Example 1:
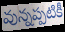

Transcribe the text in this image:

వున్నప్పటికీ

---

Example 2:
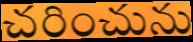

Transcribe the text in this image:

చరించును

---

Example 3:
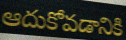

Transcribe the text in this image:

ఆదుకోవడానికి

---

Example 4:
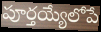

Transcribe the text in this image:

పూర్తయ్యేలోపే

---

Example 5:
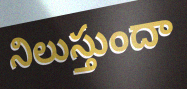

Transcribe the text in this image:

నిలుస్తుందా